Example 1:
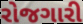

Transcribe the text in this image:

રોજગારી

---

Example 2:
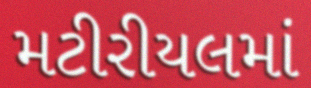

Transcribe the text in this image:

મટીરીયલમાં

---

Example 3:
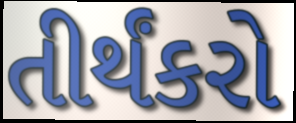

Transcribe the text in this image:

તીર્થંકરો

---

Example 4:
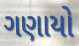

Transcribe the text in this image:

ગણાયો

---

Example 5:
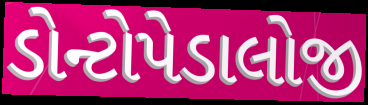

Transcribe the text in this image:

ડોન્ટોપેડાલોજી